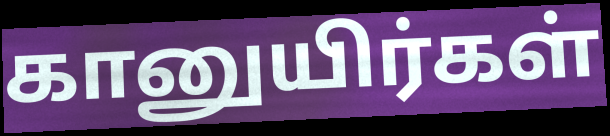
கானுயிர்கள்